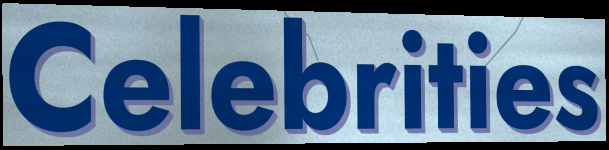
Celebrities